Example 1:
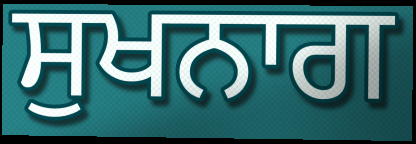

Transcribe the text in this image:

ਸੁਖਨਾਗ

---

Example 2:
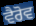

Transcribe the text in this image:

ਵੈਰੋਵ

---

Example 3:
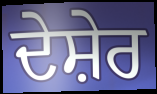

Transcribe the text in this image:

ਦੇਸ਼ੇਰ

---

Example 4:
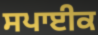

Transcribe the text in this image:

ਸਪਾਈਕ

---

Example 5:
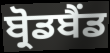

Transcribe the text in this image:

ਬ੍ਰੋਡਬੈਂਡ